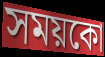
সময়কো